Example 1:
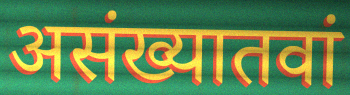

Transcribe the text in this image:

असंख्यातवां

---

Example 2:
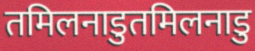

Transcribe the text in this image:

तमिलनाडुतमिलनाडु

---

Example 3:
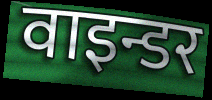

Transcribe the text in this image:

वाइन्डर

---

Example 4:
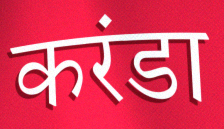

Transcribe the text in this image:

करंडा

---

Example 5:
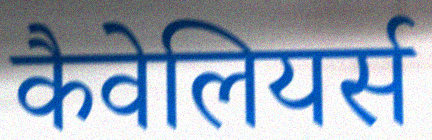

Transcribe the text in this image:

कैवेलियर्स